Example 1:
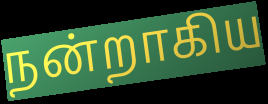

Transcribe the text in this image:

நன்றாகிய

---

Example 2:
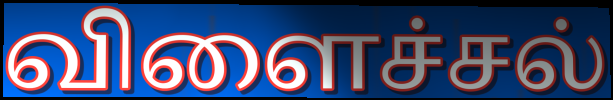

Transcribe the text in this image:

விளைச்சல்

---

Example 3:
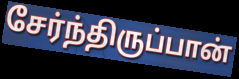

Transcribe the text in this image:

சேர்ந்திருப்பான்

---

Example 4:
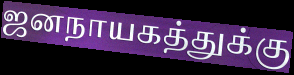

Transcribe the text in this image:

ஜனநாயகத்துக்கு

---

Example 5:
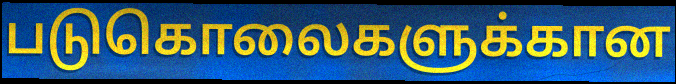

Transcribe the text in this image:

படுகொலைகளுக்கான